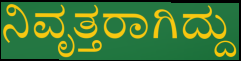
ನಿವೃತ್ತರಾಗಿದ್ದು